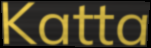
Katta